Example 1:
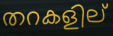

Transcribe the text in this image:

തറകളില്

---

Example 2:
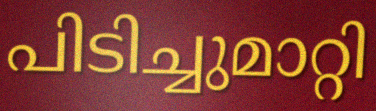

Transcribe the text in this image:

പിടിച്ചുമാറ്റി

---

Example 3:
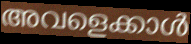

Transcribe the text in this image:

അവളെക്കാൾ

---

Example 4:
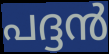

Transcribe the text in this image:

പദ്ദൻ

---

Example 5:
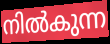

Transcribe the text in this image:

നിൽകുന്ന